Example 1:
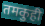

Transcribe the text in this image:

तमकुही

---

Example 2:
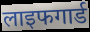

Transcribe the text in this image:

लाइफगार्ड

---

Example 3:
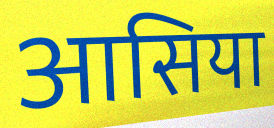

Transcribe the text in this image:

आसिया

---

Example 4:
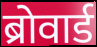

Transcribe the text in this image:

ब्रोवार्ड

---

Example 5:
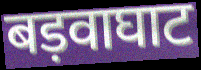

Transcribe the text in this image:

बड़वाघाट